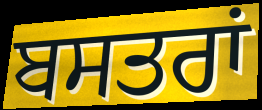
ਬਸਤਰਾਂ